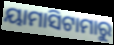
ୟାମାସିଟାମାରୁ